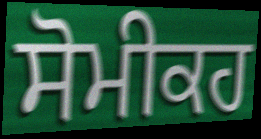
ਸੋਮੀਕਹ